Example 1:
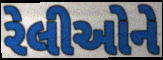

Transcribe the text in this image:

રેલીઓને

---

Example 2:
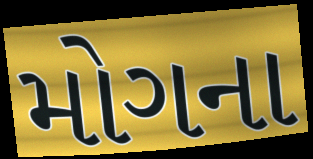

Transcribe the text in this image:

મોગના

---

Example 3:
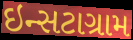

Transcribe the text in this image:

ઇન્સટાગ્રામ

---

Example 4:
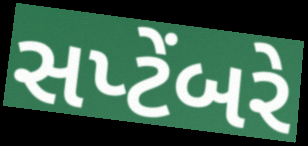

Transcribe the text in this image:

સપ્ટેંબરે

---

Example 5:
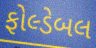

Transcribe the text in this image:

ફોલ્ડેબલ